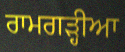
ਰਾਮਗੜ੍ਹੀਆ